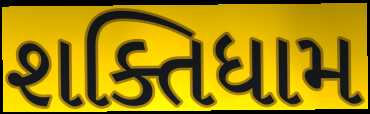
શક્તિધામ